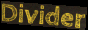
Divider